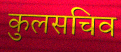
कुलसचिव